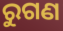
ରୁଗଣ